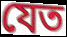
যেত